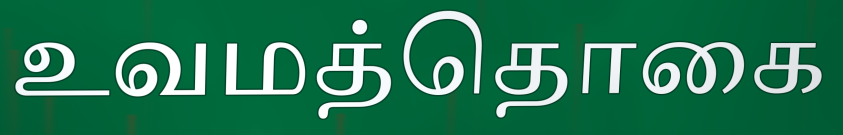
உவமத்தொகை